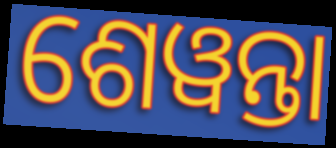
ଶେୱନ୍ତା